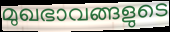
മുഖഭാവങ്ങളുടെ